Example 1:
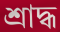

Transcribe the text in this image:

শ্রাদ্ধ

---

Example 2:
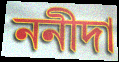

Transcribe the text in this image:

ননীদা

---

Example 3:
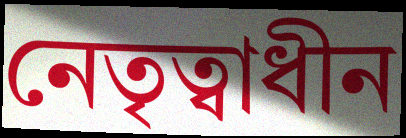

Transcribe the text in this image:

নেতৃত্বাধীন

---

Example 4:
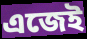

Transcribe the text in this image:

এজেই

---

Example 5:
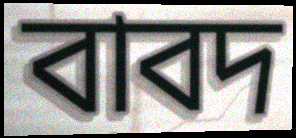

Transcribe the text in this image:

বাবদ